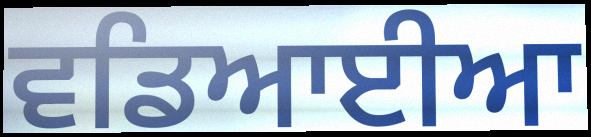
ਵਡਿਆਈਆ